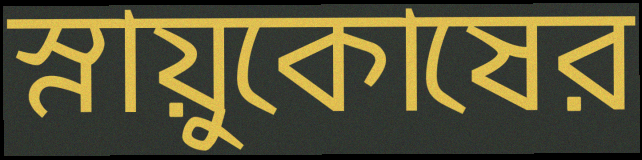
স্নায়ুকোষের